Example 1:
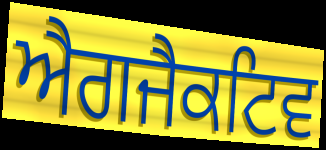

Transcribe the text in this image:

ਐਗਜੈਕਟਿਵ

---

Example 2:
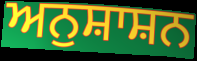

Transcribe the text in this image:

ਅਨੁਸ਼ਾਸ਼ਨ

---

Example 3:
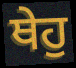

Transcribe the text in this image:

ਥੇਹੁ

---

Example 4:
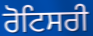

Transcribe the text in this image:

ਰੋਟਿਸਰੀ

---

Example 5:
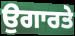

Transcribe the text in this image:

ਉਗਾਰਤੇ